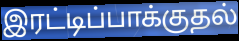
இரட்டிப்பாக்குதல்